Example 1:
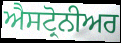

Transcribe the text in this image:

ਐਸਟ੍ਰੋਨੀਅਰ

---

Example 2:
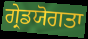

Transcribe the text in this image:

ਗ੍ਰੇਡਯੋਗਤਾ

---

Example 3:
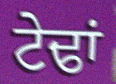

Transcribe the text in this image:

ਟੇਢਾਂ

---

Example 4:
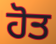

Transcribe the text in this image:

ਹੋਤ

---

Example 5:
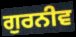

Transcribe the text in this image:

ਗੁਰਨੀਵ